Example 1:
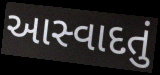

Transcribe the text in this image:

આસ્વાદતું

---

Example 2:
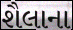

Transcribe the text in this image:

શૈલાના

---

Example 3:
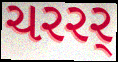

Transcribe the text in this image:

ચરરર્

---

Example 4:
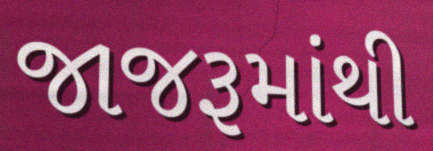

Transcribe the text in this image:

જાજરૂમાંથી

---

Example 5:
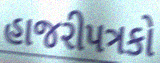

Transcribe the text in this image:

હાજરીપત્રકો